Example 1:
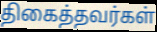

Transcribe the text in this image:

திகைத்தவர்கள்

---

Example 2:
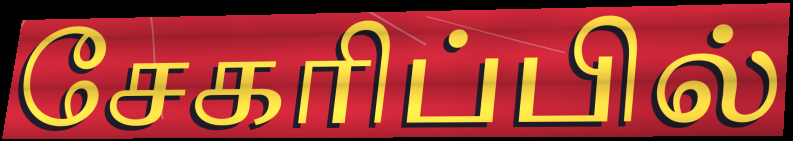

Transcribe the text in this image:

சேகரிப்பில்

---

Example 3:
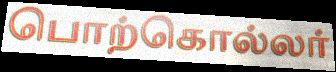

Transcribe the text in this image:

பொற்கொல்லர்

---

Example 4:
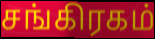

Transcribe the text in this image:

சங்கிரகம்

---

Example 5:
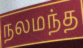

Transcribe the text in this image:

நலமந்த